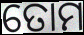
ତୋମ